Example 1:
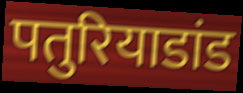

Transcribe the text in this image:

पतुरियाडांड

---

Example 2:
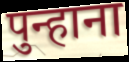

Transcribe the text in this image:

पुन्हाना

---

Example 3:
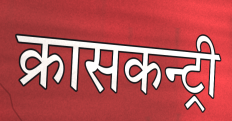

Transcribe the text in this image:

क्रासकन्ट्री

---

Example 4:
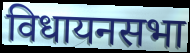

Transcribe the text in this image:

विधायनसभा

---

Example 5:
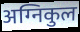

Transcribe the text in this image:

अग्निकुल